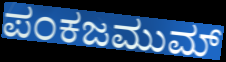
ಪಂಕಜಮುಮ್